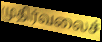
முதிர்வலைச்